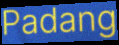
Padang